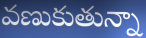
వణుకుతున్నా